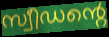
സ്വീഡന്റെ